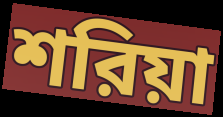
শরিয়া